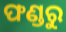
ଫଣ୍ଡରୁ